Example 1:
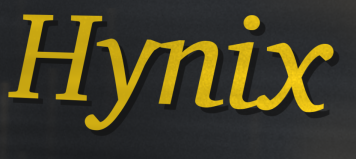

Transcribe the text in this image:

Hynix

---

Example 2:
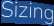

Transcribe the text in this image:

Sizing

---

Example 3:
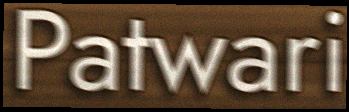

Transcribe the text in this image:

Patwari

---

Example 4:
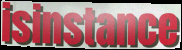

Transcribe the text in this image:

isinstance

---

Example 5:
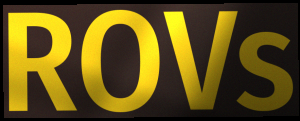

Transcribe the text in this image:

ROVs